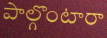
పాల్గొంటారా